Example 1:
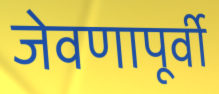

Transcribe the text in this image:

जेवणापूर्वी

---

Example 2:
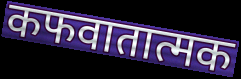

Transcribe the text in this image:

कफवातात्मक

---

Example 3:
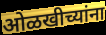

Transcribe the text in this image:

ओळखीच्यांना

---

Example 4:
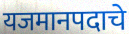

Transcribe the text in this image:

यजमानपदाचे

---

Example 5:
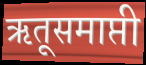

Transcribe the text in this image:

ऋतूसमाप्ती